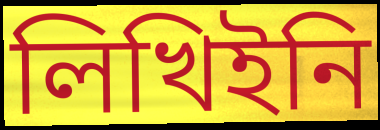
লিখিইনি